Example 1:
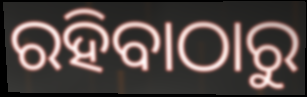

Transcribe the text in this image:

ରହିବାଠାରୁ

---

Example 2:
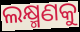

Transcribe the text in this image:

ଲକ୍ଷ୍ମଣକୁ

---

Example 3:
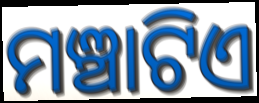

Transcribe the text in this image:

ମଞ୍ଚାଟିଏ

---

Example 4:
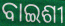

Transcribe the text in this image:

ବାଇଶୀ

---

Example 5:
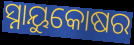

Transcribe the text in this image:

ସ୍ନାୟୁକୋଷର